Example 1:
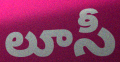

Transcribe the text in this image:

లూసీ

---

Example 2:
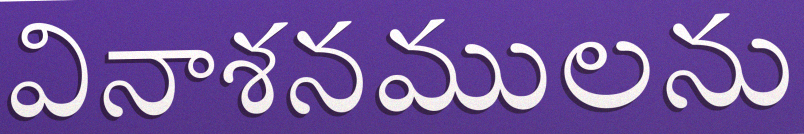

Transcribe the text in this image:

వినాశనములను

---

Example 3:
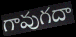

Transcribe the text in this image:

గావుగదా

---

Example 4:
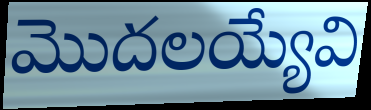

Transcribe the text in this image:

మొదలయ్యేవి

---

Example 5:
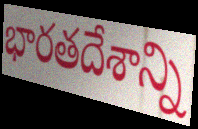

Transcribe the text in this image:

భారతదేశాన్ని